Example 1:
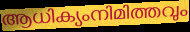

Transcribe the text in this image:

ആധിക്യംനിമിത്തവും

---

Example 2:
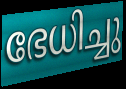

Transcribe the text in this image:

ഭേധിച്ചു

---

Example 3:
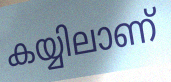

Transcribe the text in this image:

കയ്യിലാണ്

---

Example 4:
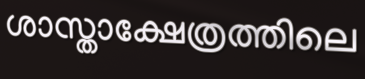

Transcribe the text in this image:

ശാസ്താക്ഷേത്രത്തിലെ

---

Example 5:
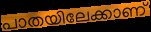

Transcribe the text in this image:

പാതയിലേക്കാണ്